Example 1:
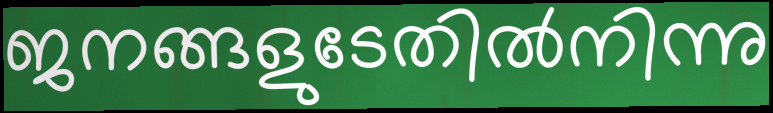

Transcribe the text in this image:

ജനങ്ങളുടേതിൽനിന്നു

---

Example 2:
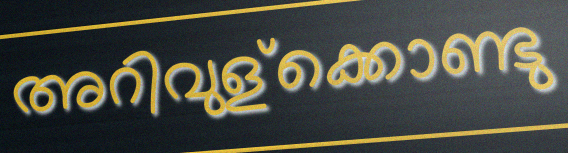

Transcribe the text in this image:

അറിവുള്ക്കൊണ്ടു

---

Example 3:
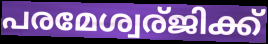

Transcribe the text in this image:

പരമേശ്വര്ജിക്ക്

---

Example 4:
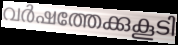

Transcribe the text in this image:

വർഷത്തേക്കുകൂടി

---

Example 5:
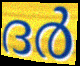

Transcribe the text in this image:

ദർ